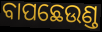
ବାପଛେଉଣ୍ଡ